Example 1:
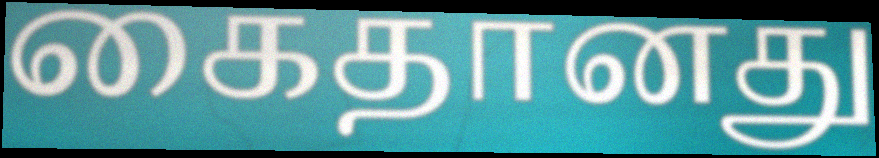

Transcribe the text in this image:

கைதானது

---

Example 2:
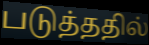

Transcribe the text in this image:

படுத்ததில்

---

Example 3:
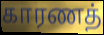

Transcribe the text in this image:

காரணத்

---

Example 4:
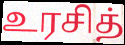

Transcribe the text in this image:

உரசித்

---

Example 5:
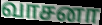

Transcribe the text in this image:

வாசனா